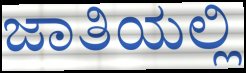
ಜಾತಿಯಲ್ಲಿ